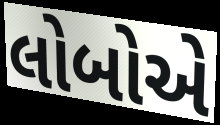
લોબોએ